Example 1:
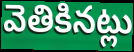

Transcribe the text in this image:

వెతికినట్లు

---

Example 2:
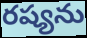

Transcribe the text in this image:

రష్యను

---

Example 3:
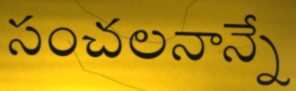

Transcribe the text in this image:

సంచలనాన్నే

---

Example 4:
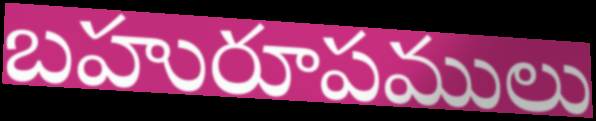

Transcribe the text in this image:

బహురూపములు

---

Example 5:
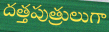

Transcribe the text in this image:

దత్తపుత్రులుగా